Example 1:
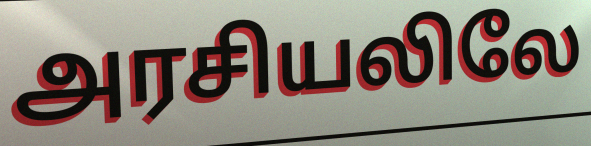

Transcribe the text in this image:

அரசியலிலே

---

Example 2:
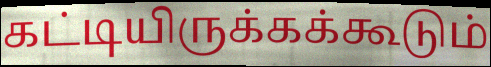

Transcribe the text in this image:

கட்டியிருக்கக்கூடும்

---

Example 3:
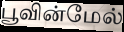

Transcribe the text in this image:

பூவின்மேல்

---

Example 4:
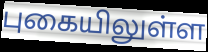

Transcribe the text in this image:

புகையிலுள்ள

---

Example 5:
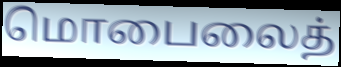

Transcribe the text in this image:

மொபைலைத்